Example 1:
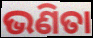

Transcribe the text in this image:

ଭଣିତା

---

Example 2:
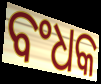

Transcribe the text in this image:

ବଂଧକ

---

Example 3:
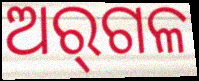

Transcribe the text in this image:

ଅର୍‌ଗଳ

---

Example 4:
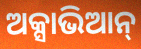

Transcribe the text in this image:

ଅକ୍ସାଭିଆନ୍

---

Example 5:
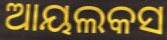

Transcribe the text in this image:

ଆୟଲକସ